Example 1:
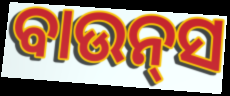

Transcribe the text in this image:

ବାଉନ୍‌ସ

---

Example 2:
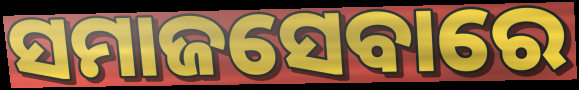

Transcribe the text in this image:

ସମାଜସେବାରେ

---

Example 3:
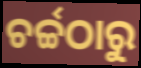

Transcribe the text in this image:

ଚର୍ଚ୍ଚଠାରୁ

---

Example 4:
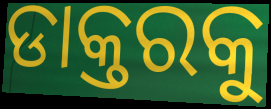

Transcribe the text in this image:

ଡାକ୍ତରକୁ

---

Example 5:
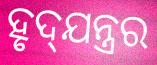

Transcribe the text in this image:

ହୃଦ୍‍ଯନ୍ତ୍ରର